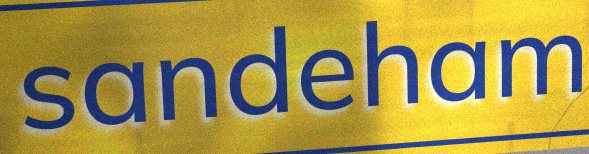
sandeham